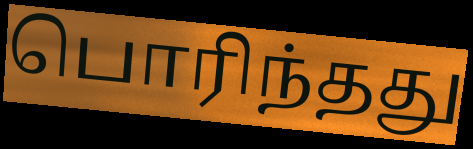
பொரிந்தது